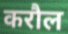
करौल